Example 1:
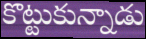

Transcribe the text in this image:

కొట్టుకున్నాడు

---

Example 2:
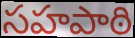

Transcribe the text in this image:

సహపాఠి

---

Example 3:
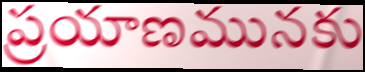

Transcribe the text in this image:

ప్రయాణమునకు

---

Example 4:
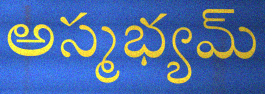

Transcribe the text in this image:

అస్మభ్యమ్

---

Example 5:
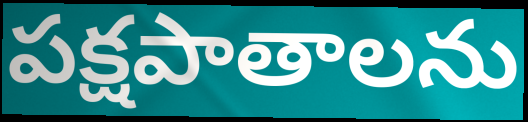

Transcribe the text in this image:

పక్షపాతాలను